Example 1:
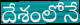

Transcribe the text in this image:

దేశంలోనే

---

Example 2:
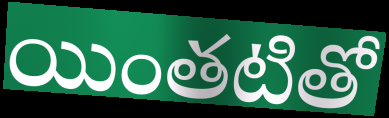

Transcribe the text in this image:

యింతటితో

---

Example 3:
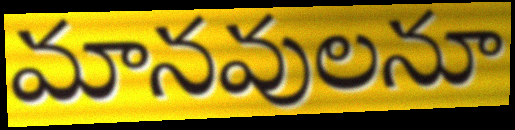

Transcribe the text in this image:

మానవులనూ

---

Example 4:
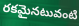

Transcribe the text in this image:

రకమైనటువంటి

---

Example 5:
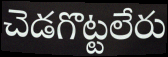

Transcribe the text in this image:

చెడగొట్టలేరు